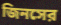
জিনসের